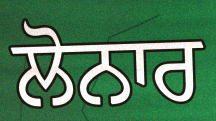
ਲੋਨਾਰ